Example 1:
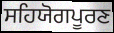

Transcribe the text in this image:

ਸਹਿਯੋਗਪੂਰਣ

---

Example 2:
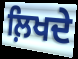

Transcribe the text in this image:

ਲ਼ਿਖਦੇ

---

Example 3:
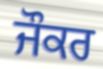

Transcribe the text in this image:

ਜੌਕਰ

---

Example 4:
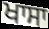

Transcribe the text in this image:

ਖਾਸਾ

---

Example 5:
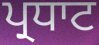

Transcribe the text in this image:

ਪ੍ਰਧਾਟ